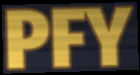
PFY